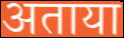
अताया